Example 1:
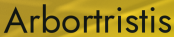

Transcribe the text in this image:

Arbortristis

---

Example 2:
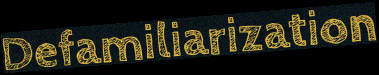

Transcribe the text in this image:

Defamiliarization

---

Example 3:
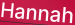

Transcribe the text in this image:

Hannah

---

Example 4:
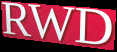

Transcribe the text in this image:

RWD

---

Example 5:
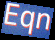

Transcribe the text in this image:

Eqn